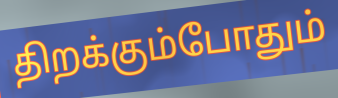
திறக்கும்போதும்